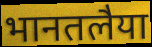
भानतलैया